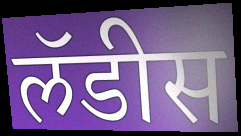
लॅडीस